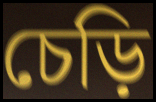
চেড়ি